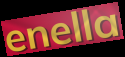
enella